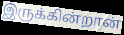
இருக்கின்றான்